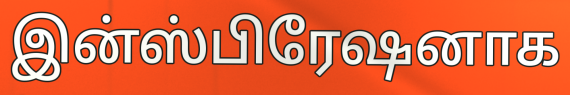
இன்ஸ்பிரேஷனாக